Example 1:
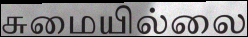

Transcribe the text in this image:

சுமையில்லை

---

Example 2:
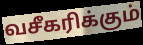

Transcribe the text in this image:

வசீகரிக்கும்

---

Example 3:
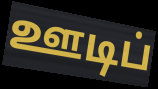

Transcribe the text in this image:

ஊடிப்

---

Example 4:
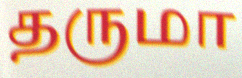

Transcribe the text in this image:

தருமா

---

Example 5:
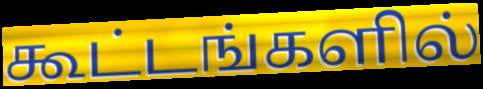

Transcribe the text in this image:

கூட்டங்களில்